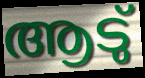
ആടു്